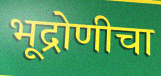
भूद्रोणीचा